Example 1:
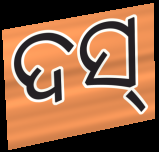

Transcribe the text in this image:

ଦସ୍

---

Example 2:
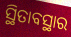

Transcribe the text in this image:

ସ୍ଥିତାବସ୍ଥାର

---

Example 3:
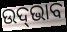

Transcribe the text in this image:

ଉଦ୍‍ଭାବ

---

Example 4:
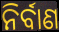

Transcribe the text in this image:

ନିର୍ବାଣ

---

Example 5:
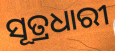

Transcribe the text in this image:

ସୂତ୍ରଧାରୀ